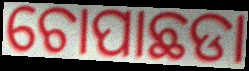
ଚୋପାଛଡା